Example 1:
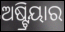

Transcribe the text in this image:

ଅଷ୍ଟ୍ରିୟାର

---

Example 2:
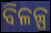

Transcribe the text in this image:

ବିଳଳ୍ପ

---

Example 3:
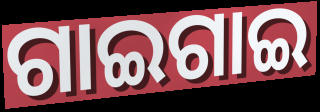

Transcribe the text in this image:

ଗାଇଗାଇ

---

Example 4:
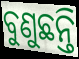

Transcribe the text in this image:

ବୁଣୁଛନ୍ତି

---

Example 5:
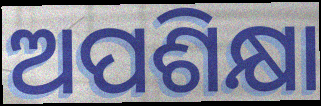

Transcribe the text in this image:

ଅପଶିକ୍ଷା